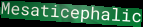
Mesaticephalic